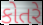
કોતરે